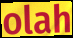
olah